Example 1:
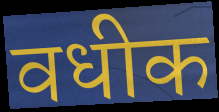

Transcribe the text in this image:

वधीक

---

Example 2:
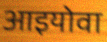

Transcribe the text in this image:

आइयोवा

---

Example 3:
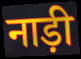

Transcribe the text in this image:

नाड़ी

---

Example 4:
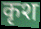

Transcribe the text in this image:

कृश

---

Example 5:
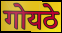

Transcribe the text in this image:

गोयठे